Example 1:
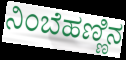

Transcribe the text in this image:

ನಿಂಬೆಹಣ್ಣಿನ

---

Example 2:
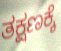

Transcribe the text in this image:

ತಕ್ಷಣಕ್ಕೆ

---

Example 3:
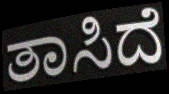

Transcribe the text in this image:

ತಾಸಿದೆ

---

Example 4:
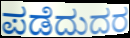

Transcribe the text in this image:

ಪಡೆದುದರ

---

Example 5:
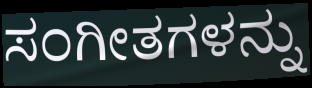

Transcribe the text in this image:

ಸಂಗೀತಗಳನ್ನು